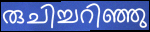
രുചിച്ചറിഞ്ഞു